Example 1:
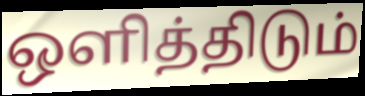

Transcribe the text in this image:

ஒளித்திடும்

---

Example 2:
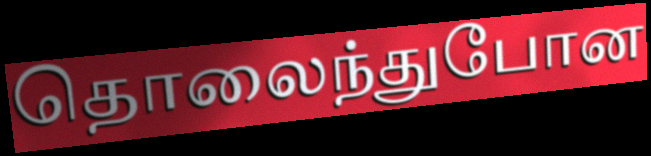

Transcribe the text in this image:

தொலைந்துபோன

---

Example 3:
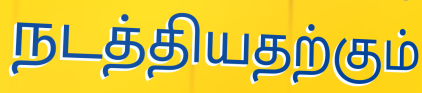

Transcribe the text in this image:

நடத்தியதற்கும்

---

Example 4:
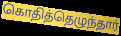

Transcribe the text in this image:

கொதித்தெழுந்தார்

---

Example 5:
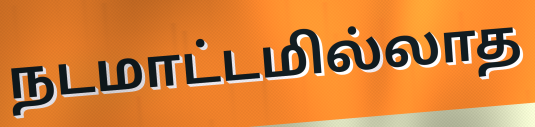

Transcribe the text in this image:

நடமாட்டமில்லாத